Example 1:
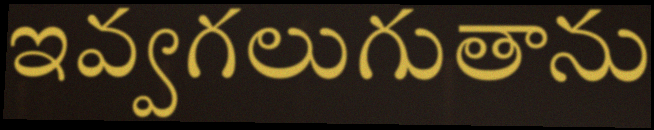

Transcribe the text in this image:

ఇవ్వగలుగుతాను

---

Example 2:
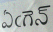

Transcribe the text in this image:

ఏఁగెన్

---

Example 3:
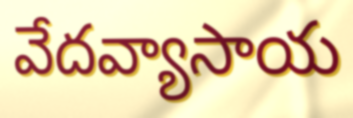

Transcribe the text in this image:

వేదవ్యాసాయ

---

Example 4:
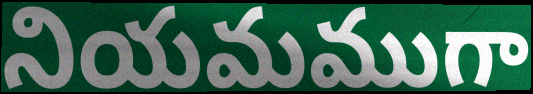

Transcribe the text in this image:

నియమముగా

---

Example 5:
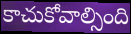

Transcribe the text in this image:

కాచుకోవాల్సింది